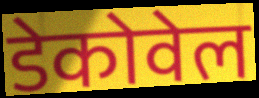
डेकोवेल